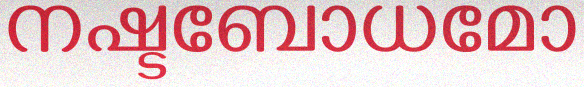
നഷ്ടബോധമോ